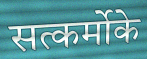
सत्कर्मोके